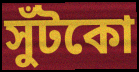
সুঁটকো